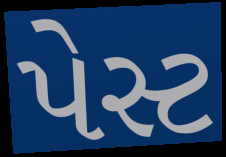
પેસ્ટ